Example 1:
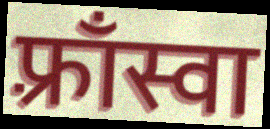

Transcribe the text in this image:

फ़्राँस्वा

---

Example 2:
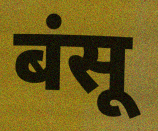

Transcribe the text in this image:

बंसू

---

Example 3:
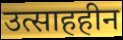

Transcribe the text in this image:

उत्साहहीन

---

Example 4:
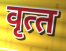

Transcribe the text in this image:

वृत्‍त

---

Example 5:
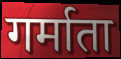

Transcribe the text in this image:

गर्माता